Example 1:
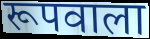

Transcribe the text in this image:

रूपवाला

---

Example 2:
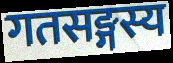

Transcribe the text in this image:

गतसङ्गस्य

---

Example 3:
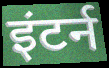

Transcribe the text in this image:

इंटर्न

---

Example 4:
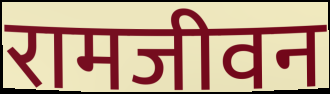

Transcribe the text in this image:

रामजीवन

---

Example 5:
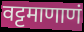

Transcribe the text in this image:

वट्टमाणाणं